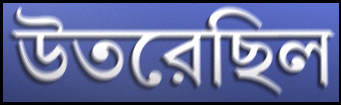
উতরেছিল